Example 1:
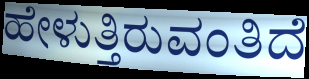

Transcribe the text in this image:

ಹೇಳುತ್ತಿರುವಂತಿದೆ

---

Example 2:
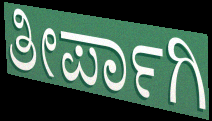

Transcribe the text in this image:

ತೀರ್ಪಾಗಿ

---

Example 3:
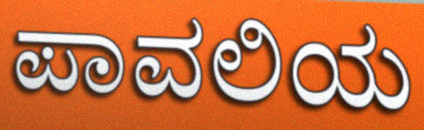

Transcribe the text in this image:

ಪಾವಲಿಯ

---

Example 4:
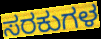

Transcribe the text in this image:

ಸರಕುಗಳ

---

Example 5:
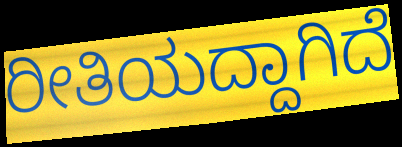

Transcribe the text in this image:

ರೀತಿಯದ್ದಾಗಿದೆ